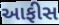
આફીસ